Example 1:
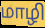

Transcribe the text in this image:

மாழி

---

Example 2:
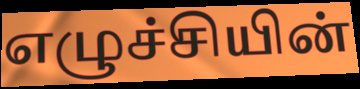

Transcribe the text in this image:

எழுச்சியின்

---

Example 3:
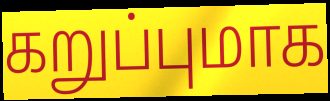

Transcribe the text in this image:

கறுப்புமாக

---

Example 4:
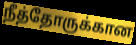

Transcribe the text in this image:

நீத்தோருக்கான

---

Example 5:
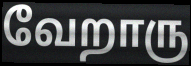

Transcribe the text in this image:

வேறாரு